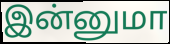
இன்னுமா